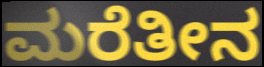
ಮರೆತೀನ